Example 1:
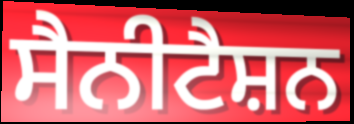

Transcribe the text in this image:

ਸੈਨੀਟੈਸ਼ਨ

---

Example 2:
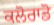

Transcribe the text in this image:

ਕਲੋਰਾਡੋ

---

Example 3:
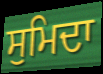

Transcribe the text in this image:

ਸੁਮਿਦਾ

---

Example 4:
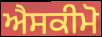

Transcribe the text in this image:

ਐਸਕੀਮੋ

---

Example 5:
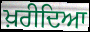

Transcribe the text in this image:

ਖ਼ਰੀਦਿਆ